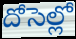
దోసెల్లో